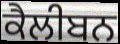
ਕੈਲੀਬਨ